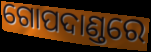
ଗୋପଦାଣ୍ଡରେ